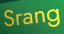
Srang